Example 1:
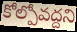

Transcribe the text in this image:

కోల్పోవద్దని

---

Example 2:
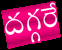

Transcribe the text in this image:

దగ్గరే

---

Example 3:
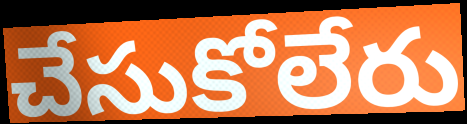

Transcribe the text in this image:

చేసుకోలేరు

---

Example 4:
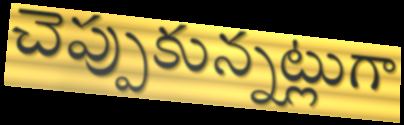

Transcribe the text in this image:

చెప్పుకున్నట్లుగా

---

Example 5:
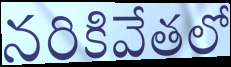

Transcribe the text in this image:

నరికివేతలో